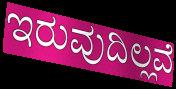
ಇರುವುದಿಲ್ಲವೆ